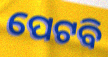
ପେଟବି